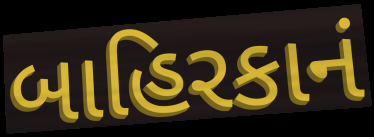
બાહિરકાનં